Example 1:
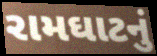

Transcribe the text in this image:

રામઘાટનું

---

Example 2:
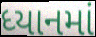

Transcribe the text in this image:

ધ્યાનમાં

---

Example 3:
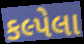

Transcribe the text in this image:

કલ્પેલા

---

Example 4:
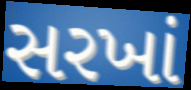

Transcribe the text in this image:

સરખાં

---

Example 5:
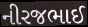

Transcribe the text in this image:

નીરજભાઈ